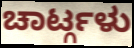
ಚಾರ್ಟ್ಗಳು